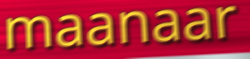
maanaar